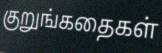
குறுங்கதைகள்